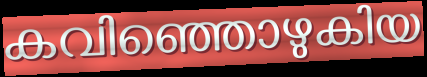
കവിഞ്ഞൊഴുകിയ